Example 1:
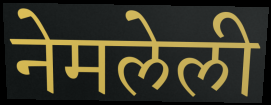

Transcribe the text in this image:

नेमलेली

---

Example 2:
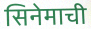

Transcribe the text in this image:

सिनेमाची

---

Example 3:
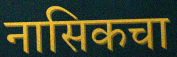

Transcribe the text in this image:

नासिकचा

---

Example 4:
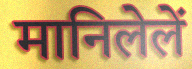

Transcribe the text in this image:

मानिलेलें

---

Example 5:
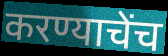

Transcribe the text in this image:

करण्याचेंच